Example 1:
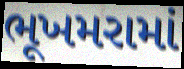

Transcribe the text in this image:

ભૂખમરામાં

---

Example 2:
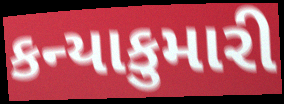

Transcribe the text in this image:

કન્યાકુમારી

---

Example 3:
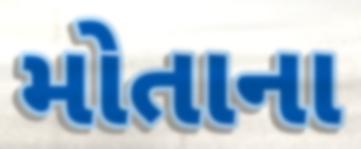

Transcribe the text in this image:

મોતાના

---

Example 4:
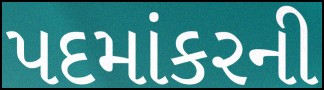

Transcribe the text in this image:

પદમાંકરની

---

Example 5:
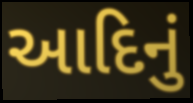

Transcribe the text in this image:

આદિનું